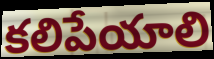
కలిపేయాలి